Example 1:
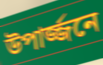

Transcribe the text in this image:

উপার্জ্জনে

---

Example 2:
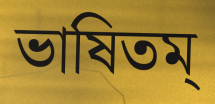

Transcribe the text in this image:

ভাষিতম্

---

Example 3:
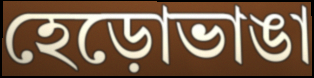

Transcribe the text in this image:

হেড়োভাঙা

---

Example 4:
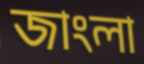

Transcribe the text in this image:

জাংলা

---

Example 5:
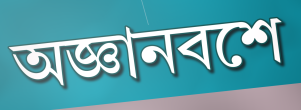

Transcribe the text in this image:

অজ্ঞানবশে